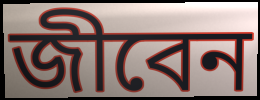
জীবেন